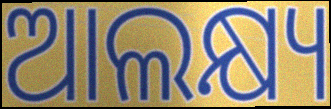
ଆଲକ୍ଷ୍ୟ